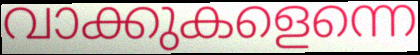
വാക്കുകളെന്നെ